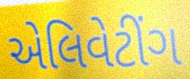
એલિવેટીંગ